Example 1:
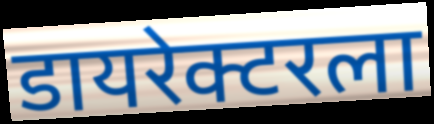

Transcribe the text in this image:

डायरेक्टरला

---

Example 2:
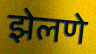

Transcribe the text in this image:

झेलणे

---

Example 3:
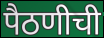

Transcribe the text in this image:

पैठणीची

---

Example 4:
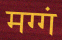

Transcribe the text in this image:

मग्गं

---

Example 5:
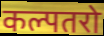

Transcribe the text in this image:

कल्पतरो